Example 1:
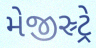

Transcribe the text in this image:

મેજીસ્ર્ટ્રે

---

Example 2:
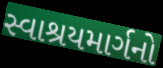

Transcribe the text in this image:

સ્વાશ્રયમાર્ગનો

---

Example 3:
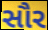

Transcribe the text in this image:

સૌર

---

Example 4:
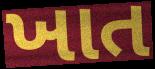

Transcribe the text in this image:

ખાત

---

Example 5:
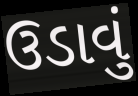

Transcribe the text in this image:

ઉડાવું